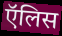
ऍलिस